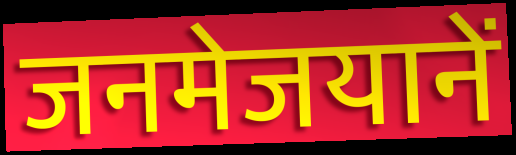
जनमेजयानें